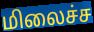
மிலைச்ச